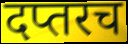
दप्तरच